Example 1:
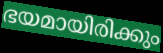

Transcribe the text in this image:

ഭയമായിരിക്കും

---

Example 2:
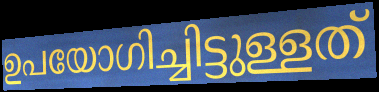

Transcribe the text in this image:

ഉപയോഗിച്ചിട്ടുള്ളത്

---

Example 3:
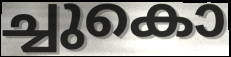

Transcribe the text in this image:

ച്ചുകൊ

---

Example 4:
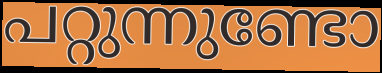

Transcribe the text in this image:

പറ്റുന്നുണ്ടോ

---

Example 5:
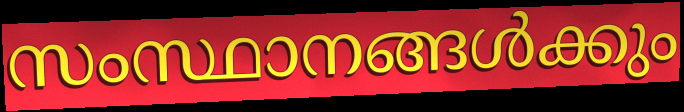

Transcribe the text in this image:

സംസ്ഥാനങ്ങൾക്കും